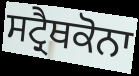
ਸਟ੍ਰੈਥਕੋਨਾ